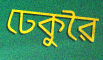
ঢেকুৱৈ